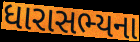
ધારાસભ્યના